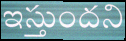
ఇస్తుందని